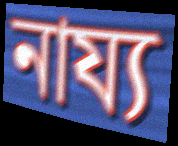
নায্য